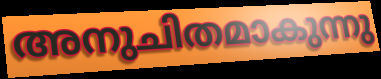
അനുചിതമാകുന്നു